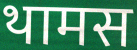
थामस